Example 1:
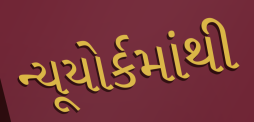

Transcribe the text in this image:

ન્યૂયોર્કમાંથી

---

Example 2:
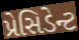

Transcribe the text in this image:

પ્રેસિડેન્ટ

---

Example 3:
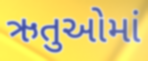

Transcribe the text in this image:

ઋતુઓમાં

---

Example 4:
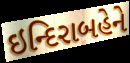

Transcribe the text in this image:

ઇન્દિરાબહેને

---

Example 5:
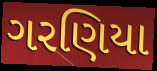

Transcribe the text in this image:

ગરણિયા